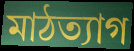
মাঠত্যাগ